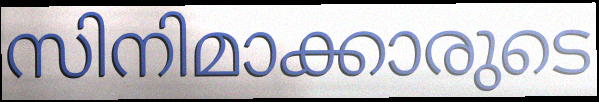
സിനിമാക്കാരുടെ